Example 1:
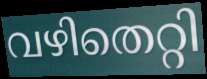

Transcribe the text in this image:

വഴിതെറ്റി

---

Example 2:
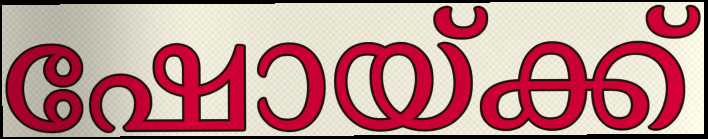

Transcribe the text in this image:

ഷോയ്ക്ക്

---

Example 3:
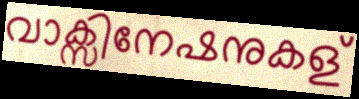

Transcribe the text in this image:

വാക്സിനേഷനുകള്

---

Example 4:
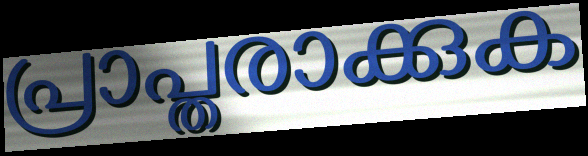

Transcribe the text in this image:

പ്രാപ്തരാക്കുക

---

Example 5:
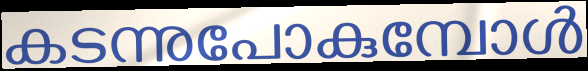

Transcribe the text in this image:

കടന്നുപോകുമ്പോൾ